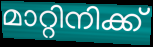
മാറ്റിനിക്ക്